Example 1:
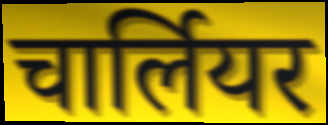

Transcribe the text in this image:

चार्लियर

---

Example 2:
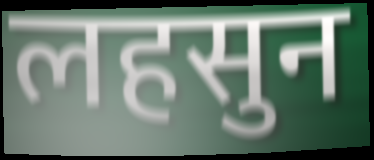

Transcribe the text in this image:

लहसुन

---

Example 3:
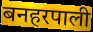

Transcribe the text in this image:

बनहरपाली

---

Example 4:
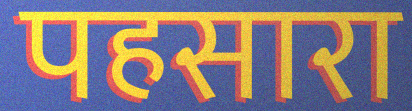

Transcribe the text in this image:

पहसारा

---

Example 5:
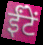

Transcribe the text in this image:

ईंटें